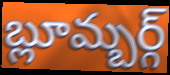
బ్లూమ్బర్గ్